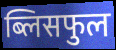
ब्लिसफुल